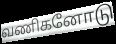
வணிகனோடு